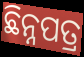
ଛିନ୍ନପତ୍ର